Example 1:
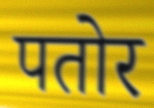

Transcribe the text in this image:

पतोर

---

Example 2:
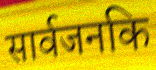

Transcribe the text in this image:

सार्वजनकि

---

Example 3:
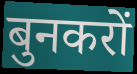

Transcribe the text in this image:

बुनकरों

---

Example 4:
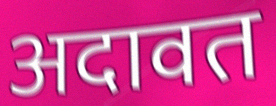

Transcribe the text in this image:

अदावत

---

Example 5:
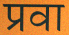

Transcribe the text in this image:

प्रवा